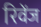
रिवेंज